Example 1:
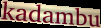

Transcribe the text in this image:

kadambu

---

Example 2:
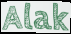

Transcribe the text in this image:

Alak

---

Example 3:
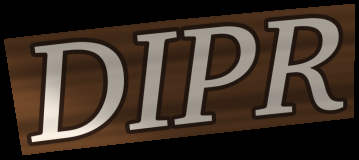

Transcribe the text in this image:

DIPR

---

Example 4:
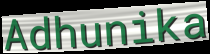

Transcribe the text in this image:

Adhunika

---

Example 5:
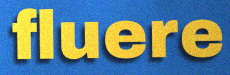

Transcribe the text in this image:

fluere